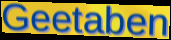
Geetaben